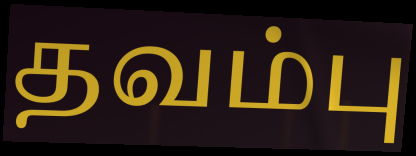
தவம்பு